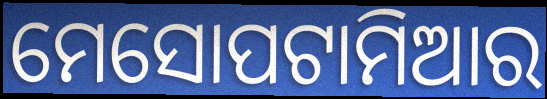
ମେସୋପଟାମିଆର